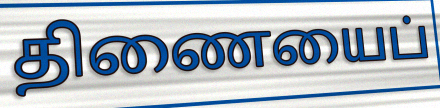
திணையைப்